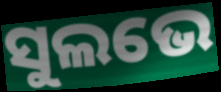
ସୁଲଭେ